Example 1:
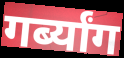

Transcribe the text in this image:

गर्ब्यांग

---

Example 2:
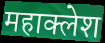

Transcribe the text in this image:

महाक्लेश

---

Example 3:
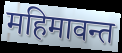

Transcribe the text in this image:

महिमावन्त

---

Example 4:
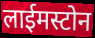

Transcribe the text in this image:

लाईमस्टोन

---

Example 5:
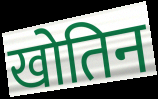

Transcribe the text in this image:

खोतिन